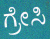
ಗ್ರೇಸಿ